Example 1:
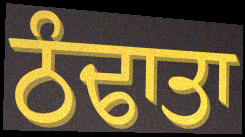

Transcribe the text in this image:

ਠੰਢਾਤਾ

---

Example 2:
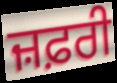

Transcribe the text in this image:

ਜ਼ਫ਼ਰੀ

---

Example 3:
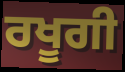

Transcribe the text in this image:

ਰਖੂਗੀ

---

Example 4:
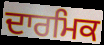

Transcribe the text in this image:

ਦਾਰਮਿਕ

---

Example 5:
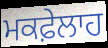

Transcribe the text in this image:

ਮਕਫ਼ੇਲਾਹ